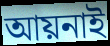
আয়নাই